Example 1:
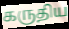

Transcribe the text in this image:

கருதிய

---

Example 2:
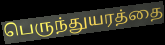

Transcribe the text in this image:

பெருந்துயரத்தை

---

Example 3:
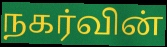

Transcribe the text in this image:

நகர்வின்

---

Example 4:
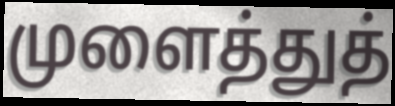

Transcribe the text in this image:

முளைத்துத்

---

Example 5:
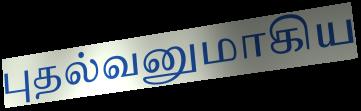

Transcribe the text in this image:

புதல்வனுமாகிய